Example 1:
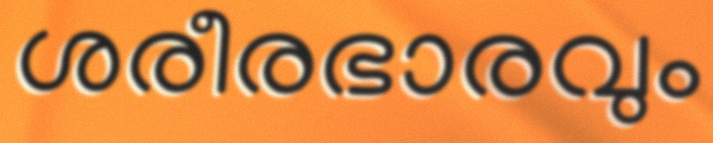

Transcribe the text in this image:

ശരീരഭാരവും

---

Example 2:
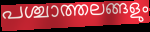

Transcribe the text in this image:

പശ്ചാത്തലങ്ങളും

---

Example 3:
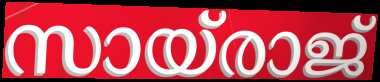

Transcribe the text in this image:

സായ്രാജ്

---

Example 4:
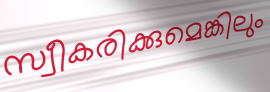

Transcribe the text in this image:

സ്വീകരിക്കുമെങ്കിലും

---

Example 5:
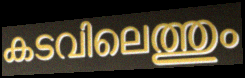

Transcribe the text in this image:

കടവിലെത്തും